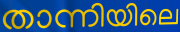
താന്നിയിലെ